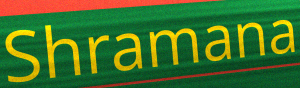
Shramana